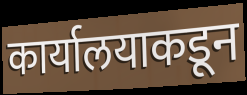
कार्यालयाकडून